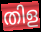
തിള